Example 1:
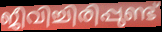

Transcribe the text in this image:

ജീവിച്ചിരിപ്പുണ്ട്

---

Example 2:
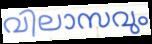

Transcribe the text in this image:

വിലാസവും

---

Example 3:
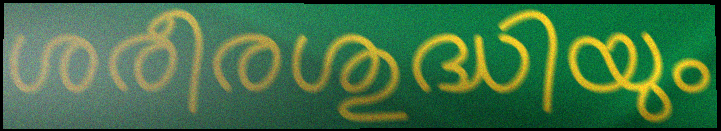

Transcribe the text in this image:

ശരീരശുദ്ധിയും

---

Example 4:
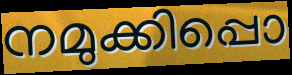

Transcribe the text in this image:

നമുക്കിപ്പൊ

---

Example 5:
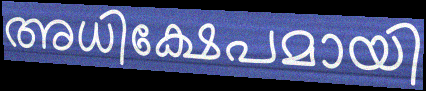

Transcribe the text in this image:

അധിക്ഷേപമായി